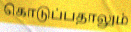
கொடுப்பதாலும்